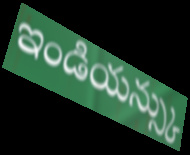
ఇండియన్స్కు